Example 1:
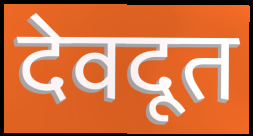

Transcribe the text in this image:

देवदूत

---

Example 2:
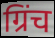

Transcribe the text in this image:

ग्रिंच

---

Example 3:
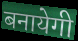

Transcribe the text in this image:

बनायेगी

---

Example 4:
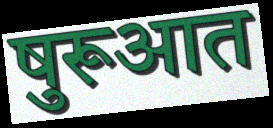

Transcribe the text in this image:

षुरूआत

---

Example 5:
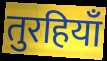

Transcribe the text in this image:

तुरहियाँ